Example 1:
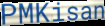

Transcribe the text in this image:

PMKisan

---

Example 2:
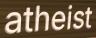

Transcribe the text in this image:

atheist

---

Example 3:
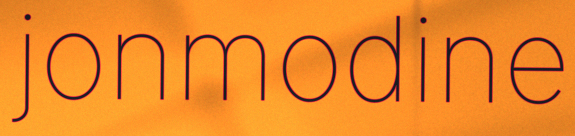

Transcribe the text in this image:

jonmodine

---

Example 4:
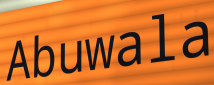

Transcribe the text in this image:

Abuwala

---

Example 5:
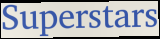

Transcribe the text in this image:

Superstars